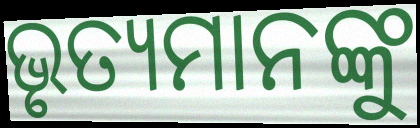
ଭୃତ୍ୟମାନଙ୍କୁ